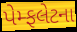
પેમ્ફલેટના